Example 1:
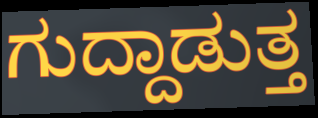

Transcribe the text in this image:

ಗುದ್ದಾಡುತ್ತ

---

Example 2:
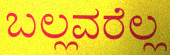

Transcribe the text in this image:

ಬಲ್ಲವರೆಲ್ಲ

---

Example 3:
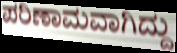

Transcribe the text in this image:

ಪರಿಣಾಮವಾಗಿದ್ದು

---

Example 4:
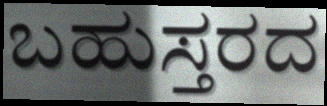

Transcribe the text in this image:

ಬಹುಸ್ತರದ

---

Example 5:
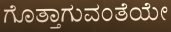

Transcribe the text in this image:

ಗೊತ್ತಾಗುವಂತೆಯೇ